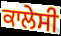
ਕਾਲੇਸੀ